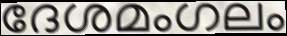
ദേശമംഗലം